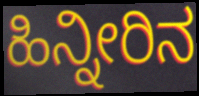
ಹಿನ್ನೀರಿನ